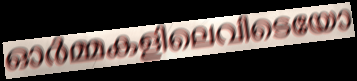
ഓർമ്മകളിലെവിടെയോ